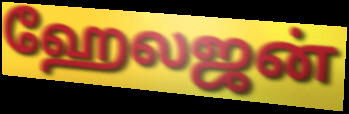
ஹேலஜன்